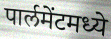
पार्लमेंटमध्ये